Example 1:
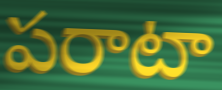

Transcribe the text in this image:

పరాటా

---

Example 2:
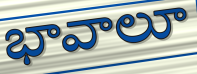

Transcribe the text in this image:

భావాలూ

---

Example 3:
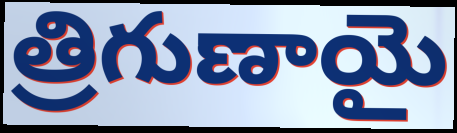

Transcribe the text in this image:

త్రిగుణాయై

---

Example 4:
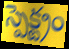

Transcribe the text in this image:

స్పెక్ట్రం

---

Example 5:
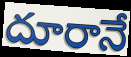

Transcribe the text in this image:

దూరానే